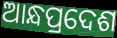
ଆନ୍ଧପ୍ରଦେଶ